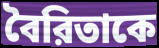
বৈরিতাকে